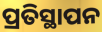
ପ୍ରତିସ୍ଥାପନ